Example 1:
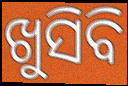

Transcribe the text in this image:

ଖୁସିବି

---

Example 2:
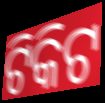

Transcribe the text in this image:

ଟିକିଟ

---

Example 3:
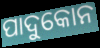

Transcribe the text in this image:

ପାଦୁକୋନ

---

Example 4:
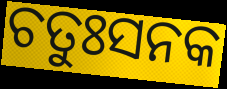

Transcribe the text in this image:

ଚତୁଃସନକ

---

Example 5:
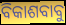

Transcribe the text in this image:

ବିକାଶବାବୁ